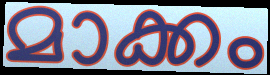
മാക്കം